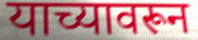
याच्यावरून